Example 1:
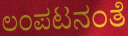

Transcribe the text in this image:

ಲಂಪಟನಂತೆ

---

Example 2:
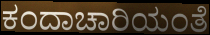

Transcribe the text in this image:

ಕಂದಾಚಾರಿಯಂತೆ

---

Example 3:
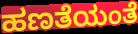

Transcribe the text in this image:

ಹಣತೆಯಂತೆ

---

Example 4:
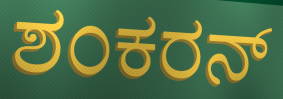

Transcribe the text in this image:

ಶಂಕರನ್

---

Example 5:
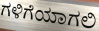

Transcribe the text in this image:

ಗಳಿಗೆಯಾಗಲಿ